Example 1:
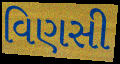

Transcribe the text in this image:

વિણસી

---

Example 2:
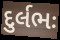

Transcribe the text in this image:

દુર્લભઃ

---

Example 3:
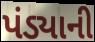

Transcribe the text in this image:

પંડ્યાની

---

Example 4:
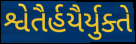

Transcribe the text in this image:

શ્વેતૈર્હયૈર્યુક્તે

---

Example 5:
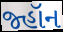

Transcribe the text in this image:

જ્હૉન